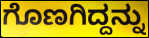
ಗೊಣಗಿದ್ದನ್ನು